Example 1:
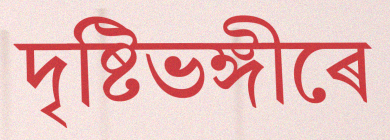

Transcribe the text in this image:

দৃষ্টিভঙ্গীৰে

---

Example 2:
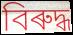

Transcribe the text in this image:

বিৰুদ্ধ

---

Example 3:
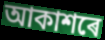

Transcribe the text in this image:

আকাশৰে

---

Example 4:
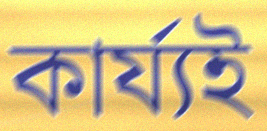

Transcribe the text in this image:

কাৰ্য্যই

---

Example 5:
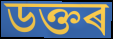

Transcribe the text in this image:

ডক্তৰ